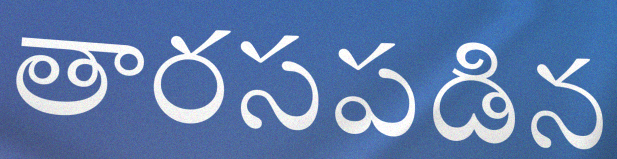
తారసపడిన